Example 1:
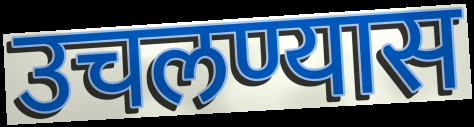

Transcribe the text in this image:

उचलण्यास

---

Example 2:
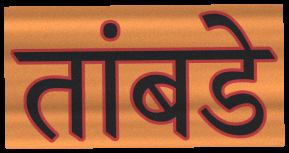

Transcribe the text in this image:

तांबडे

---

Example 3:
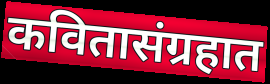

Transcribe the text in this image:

कवितासंग्रहात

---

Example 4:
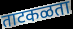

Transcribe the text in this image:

ताटकळता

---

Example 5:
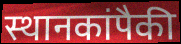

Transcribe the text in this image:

स्थानकांपैकी